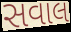
સવાલ